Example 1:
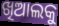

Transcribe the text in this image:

ଖିଆଲକୁ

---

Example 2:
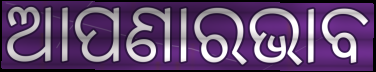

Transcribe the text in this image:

ଆପଣାରଭାବ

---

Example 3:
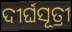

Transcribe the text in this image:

ଦୀର୍ଘସୂତ୍ରୀ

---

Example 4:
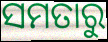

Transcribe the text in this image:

ସମତାରୁ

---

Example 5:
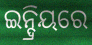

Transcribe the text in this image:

ଇନ୍ଦ୍ରିୟରେ